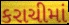
કરાચીમાં